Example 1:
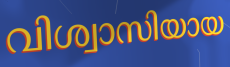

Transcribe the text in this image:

വിശ്വാസിയായ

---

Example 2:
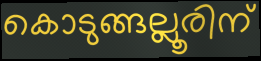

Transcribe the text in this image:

കൊടുങ്ങല്ലൂരിന്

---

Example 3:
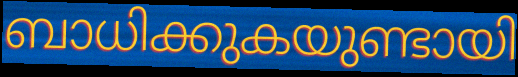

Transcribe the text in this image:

ബാധിക്കുകയുണ്ടായി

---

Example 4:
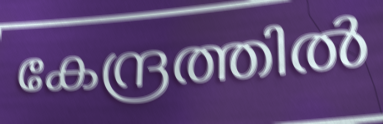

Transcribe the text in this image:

കേന്ദ്രത്തിൽ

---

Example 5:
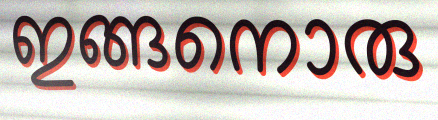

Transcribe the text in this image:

ഇങ്ങനൊരു